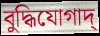
বুদ্ধিযোগাদ্